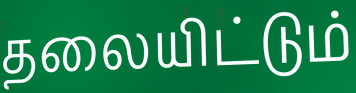
தலையிட்டும்